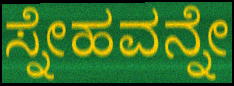
ಸ್ನೇಹವನ್ನೇ